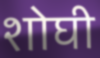
शोघी